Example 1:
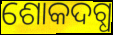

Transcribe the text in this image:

ଶୋକଦଗ୍ଧ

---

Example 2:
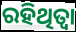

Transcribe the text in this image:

ରହିଥିତ୍ବା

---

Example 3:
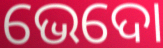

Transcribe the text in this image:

ଭେଦୋ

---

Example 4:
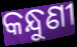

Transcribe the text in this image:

କନ୍ଧୁଣୀ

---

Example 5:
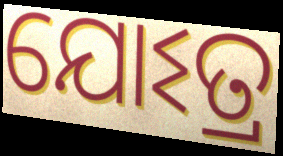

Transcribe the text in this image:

ଯୋଽତ୍ର